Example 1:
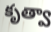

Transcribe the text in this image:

కృత్వా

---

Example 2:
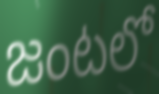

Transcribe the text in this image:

జంటలో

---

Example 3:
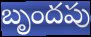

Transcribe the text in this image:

బృందపు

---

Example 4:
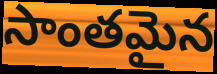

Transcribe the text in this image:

సాంతమైన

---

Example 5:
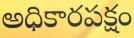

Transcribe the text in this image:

అధికారపక్షం